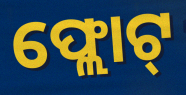
ଫ୍ଲୋଟ୍